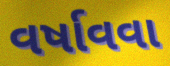
વર્ષાવવા